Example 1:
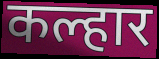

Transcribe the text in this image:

कल्हार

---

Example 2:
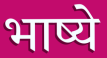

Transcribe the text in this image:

भाष्ये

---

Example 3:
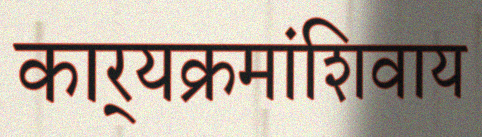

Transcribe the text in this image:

कार्यक्रमांशिवाय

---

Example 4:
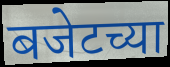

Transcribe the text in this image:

बजेटच्या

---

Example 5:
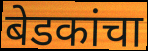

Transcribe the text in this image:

बेडकांचा